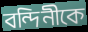
বন্দিনীকে